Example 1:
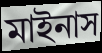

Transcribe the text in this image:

মাইনাস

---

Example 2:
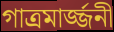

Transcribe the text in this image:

গাত্রমার্জ্জনী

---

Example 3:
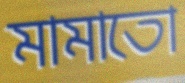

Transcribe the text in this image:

মামাতো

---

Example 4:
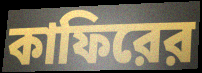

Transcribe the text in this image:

কাফিরের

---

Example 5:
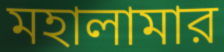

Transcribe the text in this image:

মহালামার